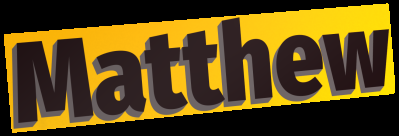
Matthew